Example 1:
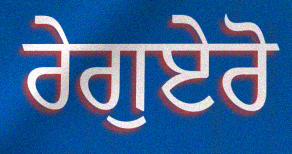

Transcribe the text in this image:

ਰੇਗੁਏਰੋ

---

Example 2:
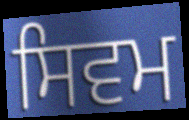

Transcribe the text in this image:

ਸਿਵਮ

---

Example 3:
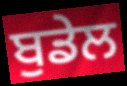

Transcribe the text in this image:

ਬੁਡੇਲ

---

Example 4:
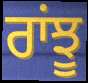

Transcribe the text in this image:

ਰਾਂਝੂ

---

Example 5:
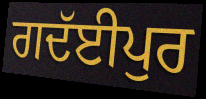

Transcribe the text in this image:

ਗਦੱਈਪੁਰ